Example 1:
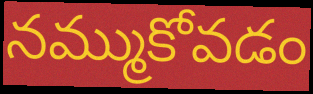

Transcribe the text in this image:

నమ్ముకోవడం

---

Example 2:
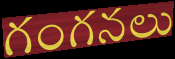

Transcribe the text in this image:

గంగనలు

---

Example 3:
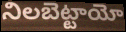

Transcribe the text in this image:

నిలబెట్టాయో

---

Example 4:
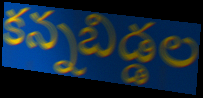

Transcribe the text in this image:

కన్నబిడ్డల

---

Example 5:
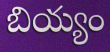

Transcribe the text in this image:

బియ్యం